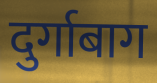
दुर्गाबाग